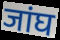
जांघ